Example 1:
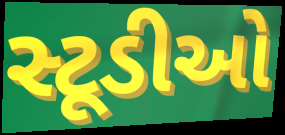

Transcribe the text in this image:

સ્ટૂડીઓ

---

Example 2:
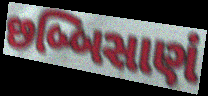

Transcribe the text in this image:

છબ્બિસાણં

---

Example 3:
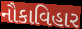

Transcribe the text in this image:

નૌકાવિહાર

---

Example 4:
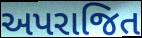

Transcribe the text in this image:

અપરાજિત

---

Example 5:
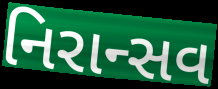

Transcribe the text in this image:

નિરાન્સવ